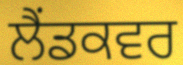
ਲੈਂਡਕਵਰ